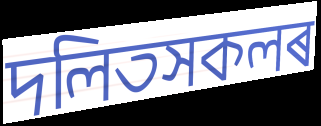
দলিতসকলৰ